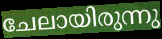
ചേലായിരുന്നു